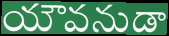
యౌవనుడా